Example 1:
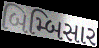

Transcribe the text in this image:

બિમ્બિસાર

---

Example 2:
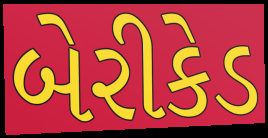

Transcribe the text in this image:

બેરીકેડ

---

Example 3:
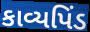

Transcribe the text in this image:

કાવ્યપિંડ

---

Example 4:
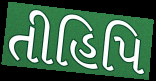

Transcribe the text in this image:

તીહિપિ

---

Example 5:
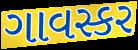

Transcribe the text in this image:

ગાવસ્કર